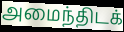
அமைந்திடக்